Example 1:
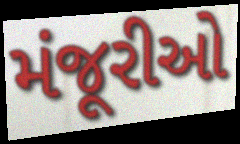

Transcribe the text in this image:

મંજૂરીઓ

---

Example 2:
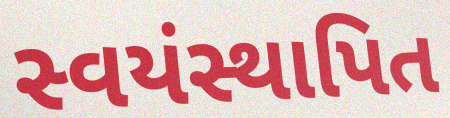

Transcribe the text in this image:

સ્વયંસ્થાપિત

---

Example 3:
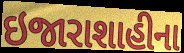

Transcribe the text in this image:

ઇજારાશાહીના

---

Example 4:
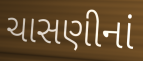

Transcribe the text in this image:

ચાસણીનાં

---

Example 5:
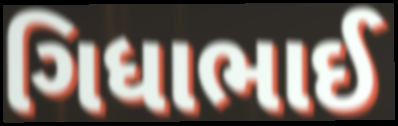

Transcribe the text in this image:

ગિધાભાઈ